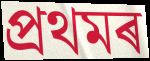
প্ৰথমৰ